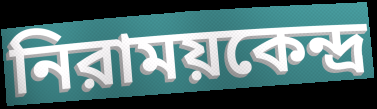
নিরাময়কেন্দ্র